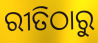
ରୀତିଠାରୁ